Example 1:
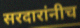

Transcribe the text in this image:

सरदारांनीच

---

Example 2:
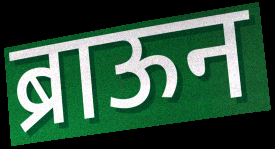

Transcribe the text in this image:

ब्राऊन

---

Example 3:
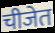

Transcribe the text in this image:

चीजेत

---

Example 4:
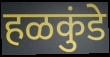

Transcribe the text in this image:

हळकुंडे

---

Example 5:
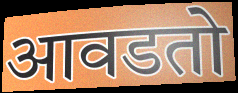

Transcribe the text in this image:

आवडतो